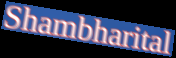
Shambharital